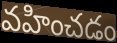
వహించడం